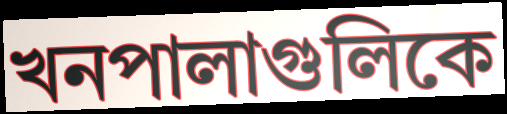
খনপালাগুলিকে